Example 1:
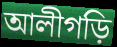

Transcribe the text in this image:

আলীগড়ি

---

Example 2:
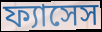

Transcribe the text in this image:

ফ্যাসেস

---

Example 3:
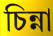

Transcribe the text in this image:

চিন্না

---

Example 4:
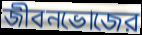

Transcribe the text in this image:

জীবনভোজের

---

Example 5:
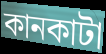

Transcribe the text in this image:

কানকাটা